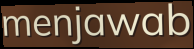
menjawab